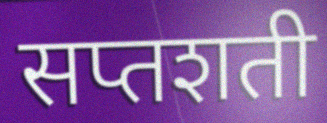
सप्तशती